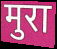
मुरा